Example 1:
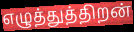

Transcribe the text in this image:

எழுத்துத்திறன்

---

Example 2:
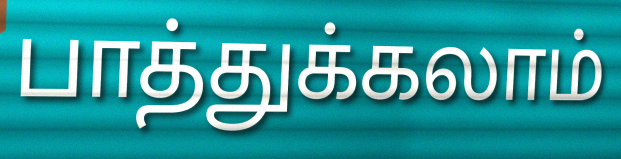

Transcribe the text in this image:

பாத்துக்கலாம்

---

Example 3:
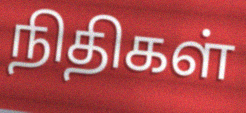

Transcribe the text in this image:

நிதிகள்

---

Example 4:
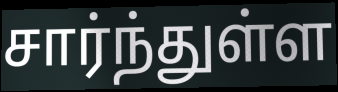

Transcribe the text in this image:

சார்ந்துள்ள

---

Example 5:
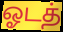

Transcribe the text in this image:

ஓடத்